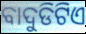
ବାଦୁଡିଟିଏ